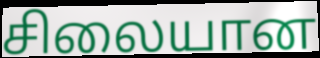
சிலையான